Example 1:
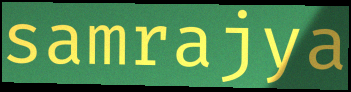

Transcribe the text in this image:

samrajya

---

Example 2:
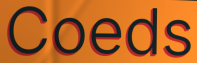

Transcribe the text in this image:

Coeds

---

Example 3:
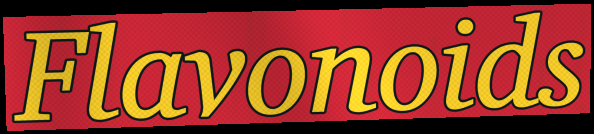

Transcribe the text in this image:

Flavonoids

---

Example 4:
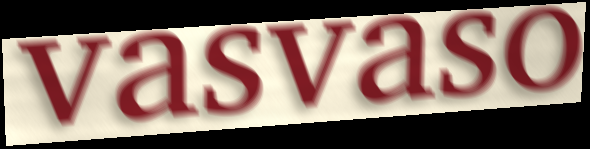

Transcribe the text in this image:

vasvaso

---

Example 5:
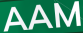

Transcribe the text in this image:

AAM